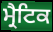
ਮ੍ਰੈਟਿਕ